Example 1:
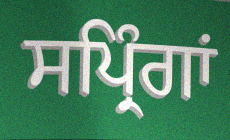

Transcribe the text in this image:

ਸਪ੍ਰਿੰਗਾਂ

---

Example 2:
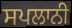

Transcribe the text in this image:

ਸਪਲਾਨੀ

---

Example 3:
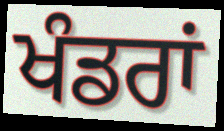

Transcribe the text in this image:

ਖੰਡਰਾਂ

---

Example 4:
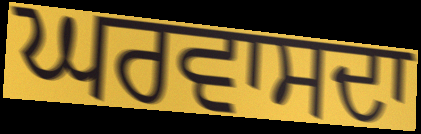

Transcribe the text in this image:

ਘਰਵਾਸਦਾ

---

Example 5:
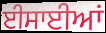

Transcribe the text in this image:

ਈਸਾਈਆਂ